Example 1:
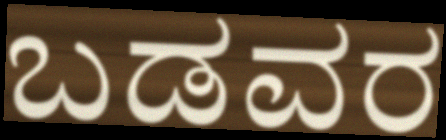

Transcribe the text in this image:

ಬಡವರ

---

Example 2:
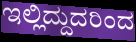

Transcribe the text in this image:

ಇಲ್ಲಿದ್ದುದರಿಂದ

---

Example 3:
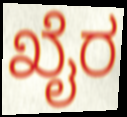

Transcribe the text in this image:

ಖೈರ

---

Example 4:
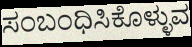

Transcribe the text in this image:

ಸಂಬಂಧಿಸಿಕೊಳ್ಳುವ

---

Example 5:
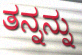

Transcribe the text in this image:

ತನ್ನನ್ನು